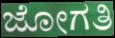
ಜೋಗತಿ